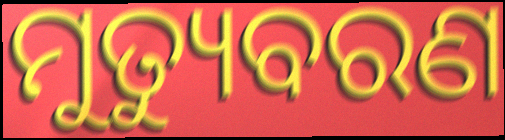
ମୁତ୍ୟୁବରଣ